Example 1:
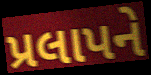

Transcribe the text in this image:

પ્રલાપને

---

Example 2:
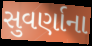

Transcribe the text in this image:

સુવર્ણાના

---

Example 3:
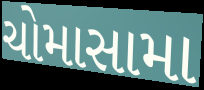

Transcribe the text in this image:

ચોમાસામા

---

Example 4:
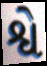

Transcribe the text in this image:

શ્વે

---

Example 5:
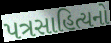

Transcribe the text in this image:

પત્રસાહિત્યનો